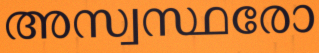
അസ്വസ്ഥരോ